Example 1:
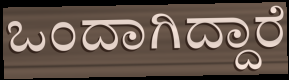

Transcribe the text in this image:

ಒಂದಾಗಿದ್ದಾರೆ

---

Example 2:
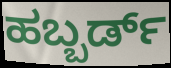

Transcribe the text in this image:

ಹಬ್ಬರ್ಡ್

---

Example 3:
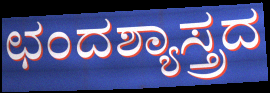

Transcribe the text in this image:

ಛಂದಶ್ಯಾಸ್ತ್ರದ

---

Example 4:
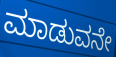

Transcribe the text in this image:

ಮಾಡುವನೇ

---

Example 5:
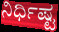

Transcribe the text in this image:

ನಿರ್ಧಿಷ್ಟ